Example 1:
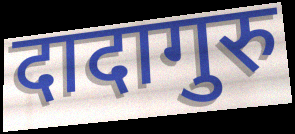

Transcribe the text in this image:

दादागुरु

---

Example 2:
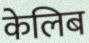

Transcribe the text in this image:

केलिब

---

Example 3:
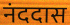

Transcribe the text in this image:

नंददास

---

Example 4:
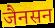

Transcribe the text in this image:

जैनसन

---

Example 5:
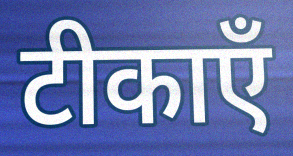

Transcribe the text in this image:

टीकाएँ